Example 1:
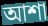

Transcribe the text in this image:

আশা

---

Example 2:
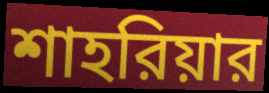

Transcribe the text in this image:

শাহরিয়ার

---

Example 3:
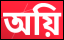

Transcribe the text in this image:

অয়ি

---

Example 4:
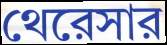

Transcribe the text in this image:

থেরেসার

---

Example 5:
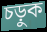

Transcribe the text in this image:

চড়ুক